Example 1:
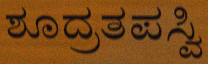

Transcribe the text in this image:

ಶೂದ್ರತಪಸ್ವಿ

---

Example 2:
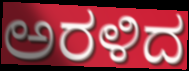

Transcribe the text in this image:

ಅರಳಿದ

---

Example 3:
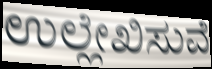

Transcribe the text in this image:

ಉಲ್ಲೇಖಿಸುವೆ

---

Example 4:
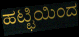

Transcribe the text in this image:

ಹಟ್ಟಿಯಿಂದ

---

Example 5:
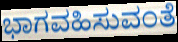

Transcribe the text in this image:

ಭಾಗವಹಿಸುವಂತೆ